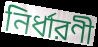
নির্ধারণী